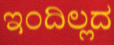
ಇಂದಿಲ್ಲದ